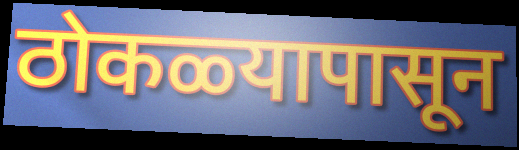
ठोकळ्यापासून